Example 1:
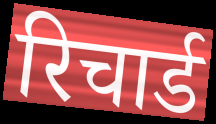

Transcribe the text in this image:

रिचार्ड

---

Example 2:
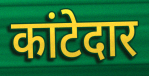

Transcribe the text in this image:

कांटेदार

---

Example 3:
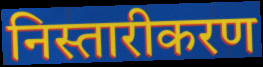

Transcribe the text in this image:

निस्तारीकरण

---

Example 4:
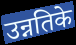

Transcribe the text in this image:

उन्नतिके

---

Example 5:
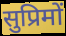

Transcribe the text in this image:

सुप्रिमों